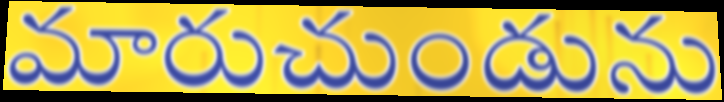
మారుచుండును